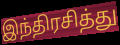
இந்திரசித்து